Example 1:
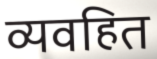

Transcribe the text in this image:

व्यवहित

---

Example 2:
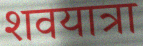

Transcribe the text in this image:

शवयात्रा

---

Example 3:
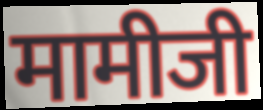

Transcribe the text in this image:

मामीजी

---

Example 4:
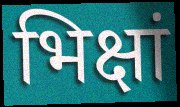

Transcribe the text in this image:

भिक्षां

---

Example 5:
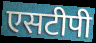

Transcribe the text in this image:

एसटीपी